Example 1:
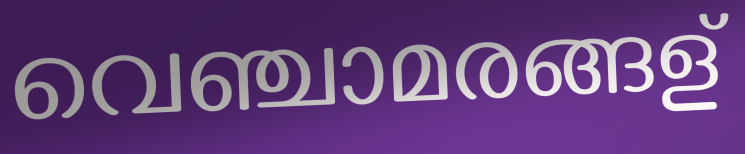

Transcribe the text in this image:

വെഞ്ചാമരങ്ങള്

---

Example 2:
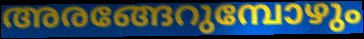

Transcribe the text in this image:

അരങ്ങേറുമ്പോഴും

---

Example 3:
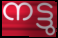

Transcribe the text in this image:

നട്ടു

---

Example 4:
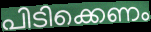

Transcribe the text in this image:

പിടിക്കെണം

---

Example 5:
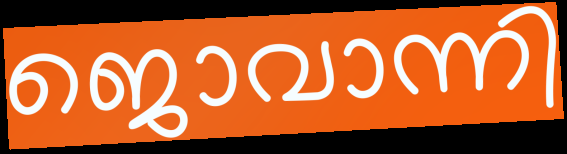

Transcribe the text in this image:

ജൊവാന്നി